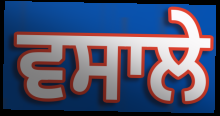
ਵਸਾਲੇ